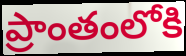
ప్రాంతంలోకి